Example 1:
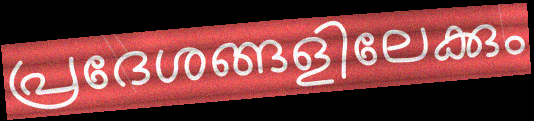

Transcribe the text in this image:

പ്രദേശങ്ങളിലേക്കും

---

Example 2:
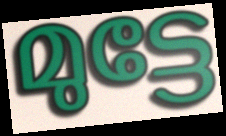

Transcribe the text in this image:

മുട്ടേ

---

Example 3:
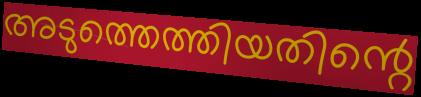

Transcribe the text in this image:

അടുത്തെത്തിയതിന്റെ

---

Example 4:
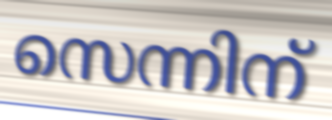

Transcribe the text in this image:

സെന്നിന്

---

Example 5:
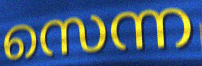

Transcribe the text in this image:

സെന്ന